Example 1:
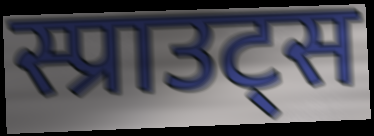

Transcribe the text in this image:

स्प्राउट्स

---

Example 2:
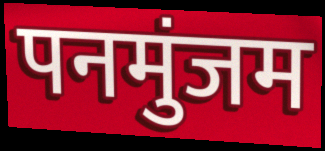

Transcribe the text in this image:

पनमुंजम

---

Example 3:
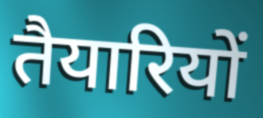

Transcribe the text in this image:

तैयारियों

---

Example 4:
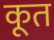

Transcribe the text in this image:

कूत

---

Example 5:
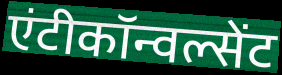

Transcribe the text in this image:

एंटीकॉन्वल्सेंट